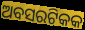
ଅବସରଟିକକ